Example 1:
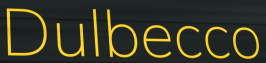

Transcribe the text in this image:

Dulbecco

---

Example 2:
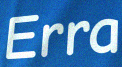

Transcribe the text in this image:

Erra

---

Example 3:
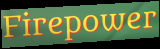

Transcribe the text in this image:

Firepower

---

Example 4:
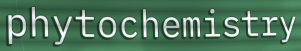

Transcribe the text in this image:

phytochemistry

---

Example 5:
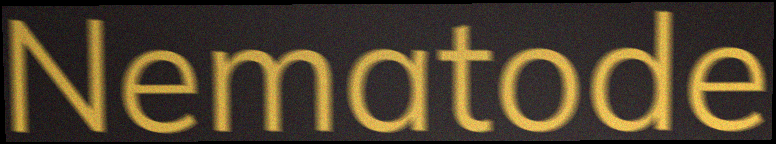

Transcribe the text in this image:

Nematode